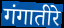
गंगातीरे